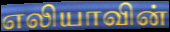
எலியாவின்